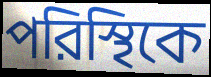
পরিস্থিকে